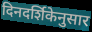
दिनदर्शिकेनुसार